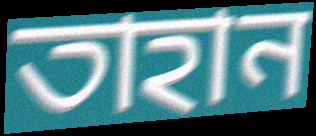
তাহান